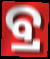
ବ୍ର